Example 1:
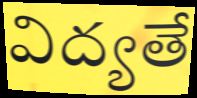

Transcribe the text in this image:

విద్యతే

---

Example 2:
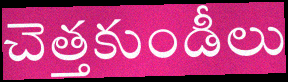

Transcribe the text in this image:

చెత్తకుండీలు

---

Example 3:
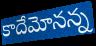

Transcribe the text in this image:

కాదేమోనన్న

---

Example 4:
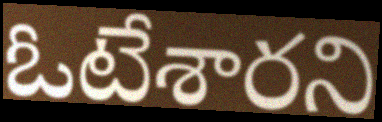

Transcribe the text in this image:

ఓటేశారని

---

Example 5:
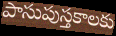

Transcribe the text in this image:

పాసుపుస్తకాలకు